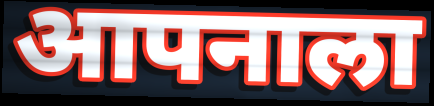
आपनाला